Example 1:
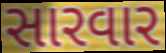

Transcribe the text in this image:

સારવાર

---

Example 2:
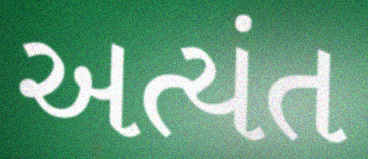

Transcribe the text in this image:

અત્યંત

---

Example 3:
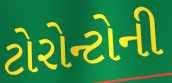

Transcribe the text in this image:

ટોરોન્ટોની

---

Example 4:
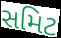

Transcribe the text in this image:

સમિટ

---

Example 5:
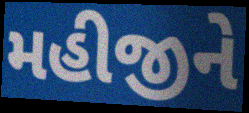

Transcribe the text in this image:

મહીજીને